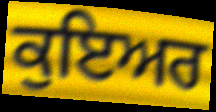
ਕੁਇਅਰ